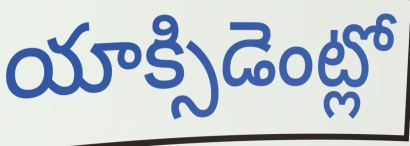
యాక్సిడెంట్లో